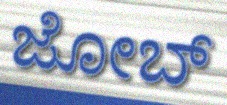
ಜೋಬ್